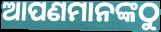
ଆପଣମାନଙ୍କଠୁ